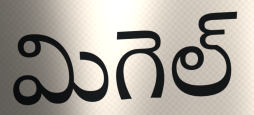
మిగెల్